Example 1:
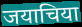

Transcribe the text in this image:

जयाचिया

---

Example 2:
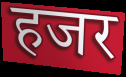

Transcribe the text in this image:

हजर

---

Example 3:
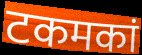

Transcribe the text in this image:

टकमकां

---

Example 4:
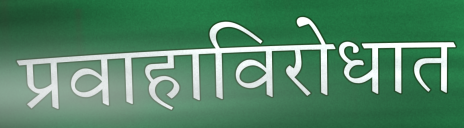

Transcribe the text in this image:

प्रवाहाविरोधात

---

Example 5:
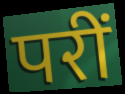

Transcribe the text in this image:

परीं